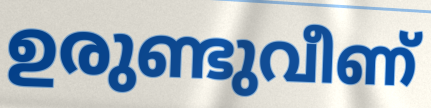
ഉരുണ്ടുവീണ്